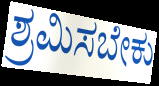
ಶ್ರಮಿಸಬೇಕು